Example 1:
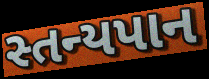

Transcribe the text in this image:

સ્તન્યપાન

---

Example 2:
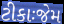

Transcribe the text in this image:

ટીકાઃજેમ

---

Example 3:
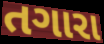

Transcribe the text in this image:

તગારા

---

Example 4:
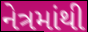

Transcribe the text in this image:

નેત્રમાંથી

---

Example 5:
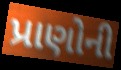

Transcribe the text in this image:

પ્રાણોની